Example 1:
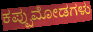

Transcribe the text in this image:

ಕಪ್ಪುಮೋಡಗಳು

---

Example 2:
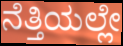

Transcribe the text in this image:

ನೆತ್ತಿಯಲ್ಲೇ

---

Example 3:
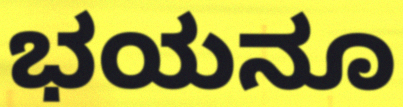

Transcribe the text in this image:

ಭಯನೂ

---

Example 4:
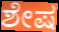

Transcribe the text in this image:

ಶೇಷ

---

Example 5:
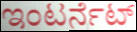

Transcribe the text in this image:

ಇಂಟರ್ನೆಟ್